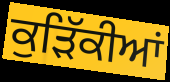
ਕੁੜਿੱਕੀਆਂ